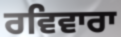
ਰਵਿਵਾਰਾ